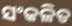
ସଂକଳିତ